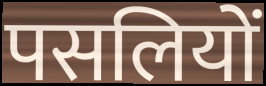
पसलियों